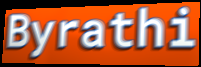
Byrathi